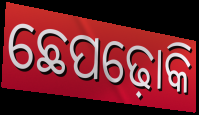
ଛେପଢ଼ୋକି